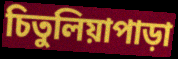
চিতুলিয়াপাড়া